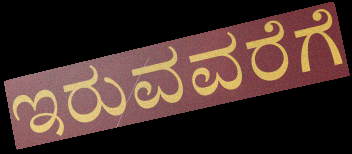
ಇರುವವರೆಗೆ